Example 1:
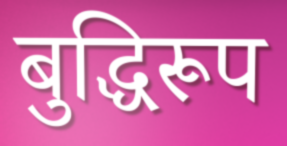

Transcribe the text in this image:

बुद्धिरूप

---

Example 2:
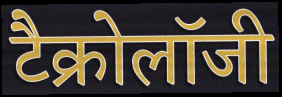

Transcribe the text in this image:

टैक्रोलॉजी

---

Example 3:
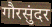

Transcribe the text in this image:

गौरसुंदर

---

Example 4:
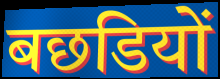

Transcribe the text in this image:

बछडियों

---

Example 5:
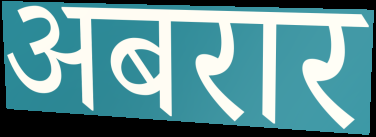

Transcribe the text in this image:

अबरार